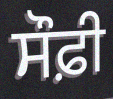
ਸੌਫ਼ੀ